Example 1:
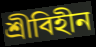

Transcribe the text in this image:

শ্রীবিহীন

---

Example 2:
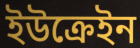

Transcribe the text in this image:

ইউক্রেইন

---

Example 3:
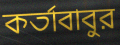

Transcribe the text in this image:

কর্তাবাবুর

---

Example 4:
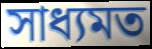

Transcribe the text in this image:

সাধ্যমত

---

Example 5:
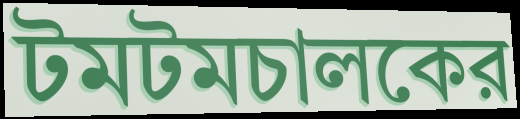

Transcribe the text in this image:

টমটমচালকের